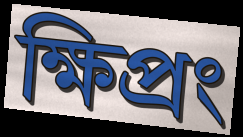
ক্ষিপ্রং